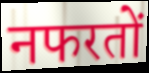
नफरतों